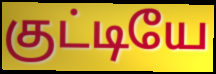
குட்டியே